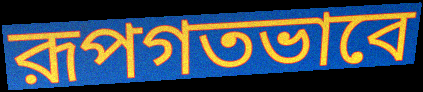
রূপগতভাবে